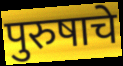
पुरुषाचे